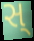
સ્